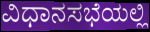
ವಿಧಾನಸಭೆಯಲ್ಲಿ